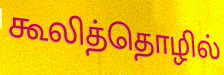
கூலித்தொழில்